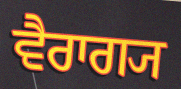
ਵੈਰਾਗ੍ਯ